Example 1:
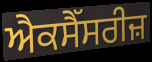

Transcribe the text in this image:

ਐਕਸੈੱਸਰੀਜ਼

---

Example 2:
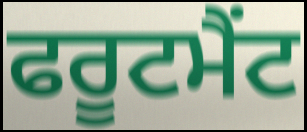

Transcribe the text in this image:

ਫਰੂਟਮੈਂਟ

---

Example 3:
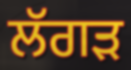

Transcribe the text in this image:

ਲੱਗੜ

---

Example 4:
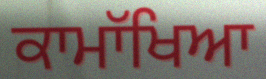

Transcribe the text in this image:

ਕਾਮਾੱਖਿਆ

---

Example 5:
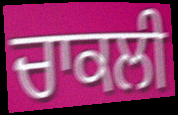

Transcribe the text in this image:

ਚਾਕਲੀ